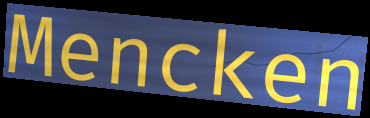
Mencken